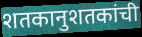
शतकानुशतकांची